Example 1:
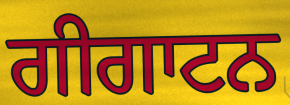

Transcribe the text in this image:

ਗੀਗਾਟਨ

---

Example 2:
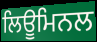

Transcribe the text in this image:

ਲਿਊਮਿਨਲ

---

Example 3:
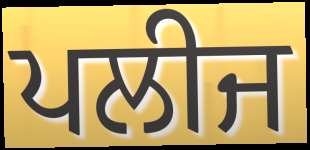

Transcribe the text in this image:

ਪਲੀਜ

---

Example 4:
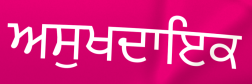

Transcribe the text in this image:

ਅਸੁਖਦਾਇਕ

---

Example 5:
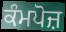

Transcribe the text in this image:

ਕੰਮਪੋਜ਼